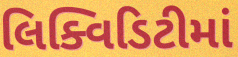
લિક્વિડિટીમાં